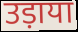
उड़ाया